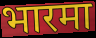
भारमा